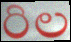
రిల